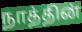
நாத்தின்